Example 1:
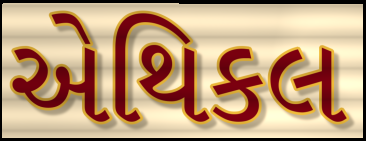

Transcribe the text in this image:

એથિકલ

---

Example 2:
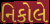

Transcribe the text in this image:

નિકોલે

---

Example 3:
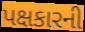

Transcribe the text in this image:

પક્ષકારની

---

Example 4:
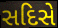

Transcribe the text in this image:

સદિસે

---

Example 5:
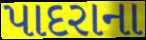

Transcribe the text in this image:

પાદરાના